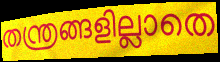
തന്ത്രങ്ങളില്ലാതെ